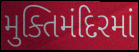
મુક્તિમંદિરમાં